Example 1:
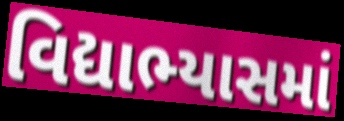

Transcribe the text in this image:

વિદ્યાભ્યાસમાં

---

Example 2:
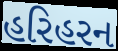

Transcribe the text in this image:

હરિહરન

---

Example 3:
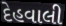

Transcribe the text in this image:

દેહવાલી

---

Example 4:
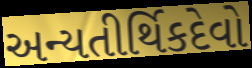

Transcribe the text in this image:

અન્યતીર્થિકદેવો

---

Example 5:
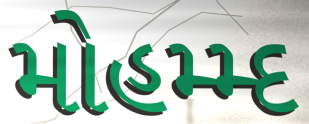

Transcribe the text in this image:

મોહમ્મ્દ